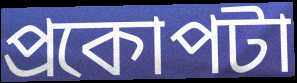
প্রকোপটা